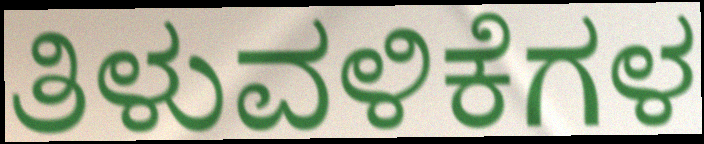
ತಿಳುವಳಿಕೆಗಳ